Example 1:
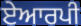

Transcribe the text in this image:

ਏਆਰਪੀ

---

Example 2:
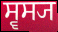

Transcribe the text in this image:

ਸ੍ਵਸ੍ਯ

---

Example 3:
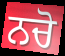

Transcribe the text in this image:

ਨਚੋ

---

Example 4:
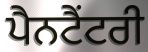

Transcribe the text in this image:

ਪੈਨਟੈਂਟਰੀ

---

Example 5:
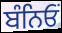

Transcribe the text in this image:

ਬੰਨਿਓਂ